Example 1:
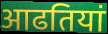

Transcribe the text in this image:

आढतियां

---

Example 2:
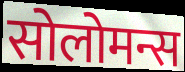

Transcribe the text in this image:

सोलोमन्स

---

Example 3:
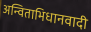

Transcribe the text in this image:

अन्विताभिधानवादी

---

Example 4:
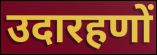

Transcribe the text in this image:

उदारहणों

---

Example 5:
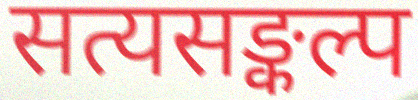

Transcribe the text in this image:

सत्यसङ्कल्प